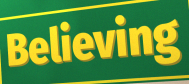
Believing